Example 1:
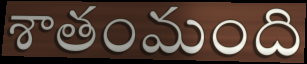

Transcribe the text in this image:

శాతంమంది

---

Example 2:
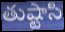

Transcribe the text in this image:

తుష్టాసి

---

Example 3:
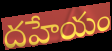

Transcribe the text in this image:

దహేయం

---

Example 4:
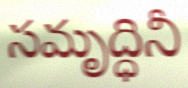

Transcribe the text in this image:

సమృద్ధినీ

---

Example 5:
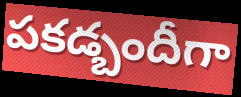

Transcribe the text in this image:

పకడ్బందీగా